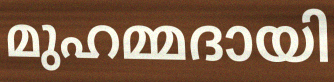
മുഹമ്മദായി